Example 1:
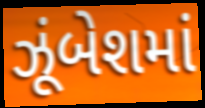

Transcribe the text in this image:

ઝૂંબેશમાં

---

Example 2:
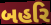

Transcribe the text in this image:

બહરિ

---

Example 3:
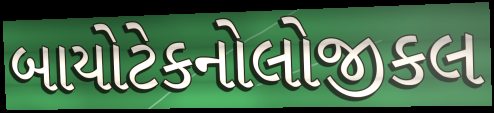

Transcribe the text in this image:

બાયોટેકનોલોજીકલ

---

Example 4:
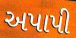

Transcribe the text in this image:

અપાપી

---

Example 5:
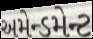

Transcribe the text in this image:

અમેન્ડમેન્ટ